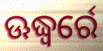
ଊଦ୍ଧ୍ୱର୍ରେ